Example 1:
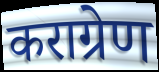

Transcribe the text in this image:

कराग्रेण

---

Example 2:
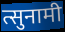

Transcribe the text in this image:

त्सुनामी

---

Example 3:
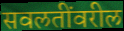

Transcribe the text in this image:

सवलतींवरील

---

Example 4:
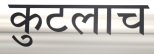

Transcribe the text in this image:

कुटलाच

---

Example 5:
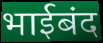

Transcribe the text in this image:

भाईबंद